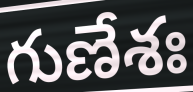
గుణేశః